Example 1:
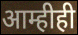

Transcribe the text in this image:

आम्हीही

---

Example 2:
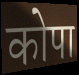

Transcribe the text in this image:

कोपा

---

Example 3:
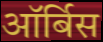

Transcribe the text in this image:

ऑर्बिस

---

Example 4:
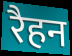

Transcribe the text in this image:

रैहन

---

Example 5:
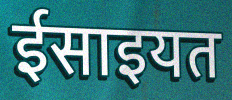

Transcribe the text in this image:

ईसाइयत